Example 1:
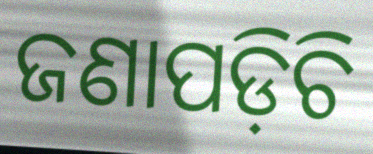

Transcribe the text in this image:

ଜଣାପଡ଼ିଚି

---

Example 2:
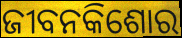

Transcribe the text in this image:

ଜୀବନକିଶୋର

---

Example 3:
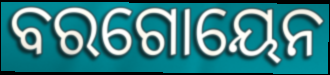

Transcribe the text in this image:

ବରଗୋୟେନ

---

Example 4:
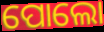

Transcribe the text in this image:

ପୋଲୋ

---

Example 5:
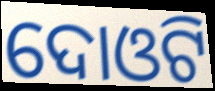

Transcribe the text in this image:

ଦୋଓଟି